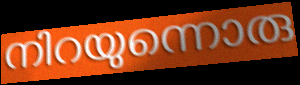
നിറയുന്നൊരു